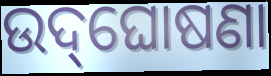
ଉଦ୍‌ଘୋଷଣା